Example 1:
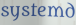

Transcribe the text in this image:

systemd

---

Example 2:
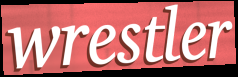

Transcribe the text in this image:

wrestler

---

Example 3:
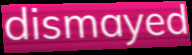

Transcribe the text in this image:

dismayed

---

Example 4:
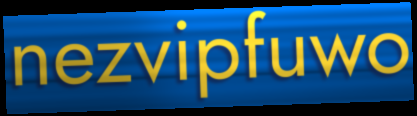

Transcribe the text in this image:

nezvipfuwo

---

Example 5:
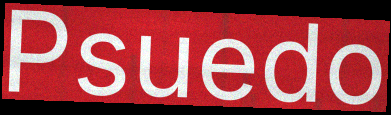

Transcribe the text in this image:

Psuedo